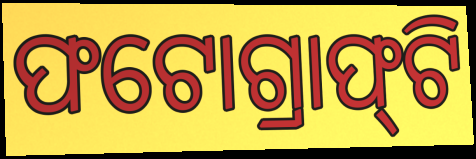
ଫଟୋଗ୍ରାଫ୍‌ଟି